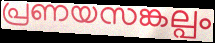
പ്രണയസങ്കല്പം